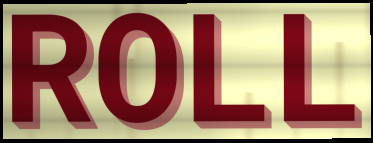
ROLL